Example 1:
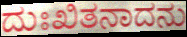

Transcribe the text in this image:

ದುಃಖಿತನಾದನು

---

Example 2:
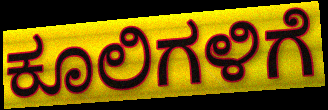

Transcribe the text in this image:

ಕೂಲಿಗಳಿಗೆ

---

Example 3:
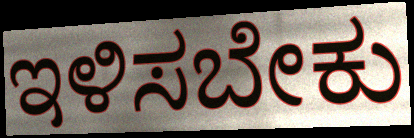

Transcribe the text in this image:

ಇಳಿಸಬೇಕು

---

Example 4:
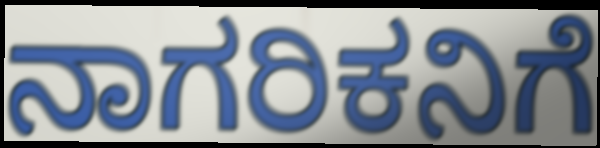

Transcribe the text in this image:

ನಾಗರಿಕನಿಗೆ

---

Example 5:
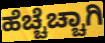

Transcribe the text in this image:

ಹೆಚ್ಚೆಚ್ಚಾಗಿ